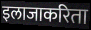
इलाजाकरिता